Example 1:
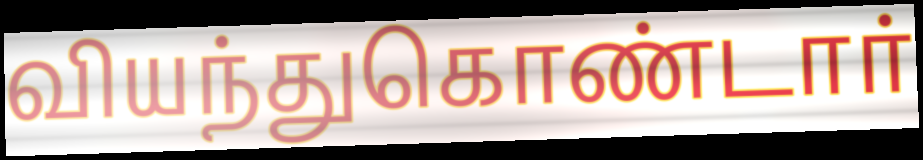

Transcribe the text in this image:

வியந்துகொண்டார்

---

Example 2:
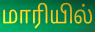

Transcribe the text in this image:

மாரியில்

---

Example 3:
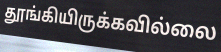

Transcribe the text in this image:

தூங்கியிருக்கவில்லை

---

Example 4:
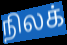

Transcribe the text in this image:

நிலக்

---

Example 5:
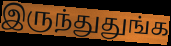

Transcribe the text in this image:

இருந்துதுங்க